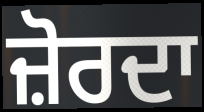
ਜ਼ੋਰਦਾ